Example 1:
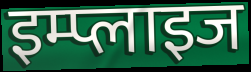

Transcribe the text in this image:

इम्प्लाइज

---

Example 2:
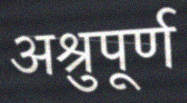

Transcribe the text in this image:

अश्रुपूर्ण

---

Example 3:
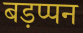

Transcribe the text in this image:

बड़प्पन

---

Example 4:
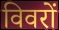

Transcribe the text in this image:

विवरों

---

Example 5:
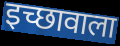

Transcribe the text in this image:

इच्छावाला